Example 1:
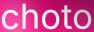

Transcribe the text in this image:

choto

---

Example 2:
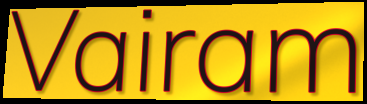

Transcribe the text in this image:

Vairam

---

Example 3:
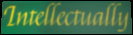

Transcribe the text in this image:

Intellectually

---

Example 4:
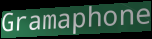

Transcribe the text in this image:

Gramaphone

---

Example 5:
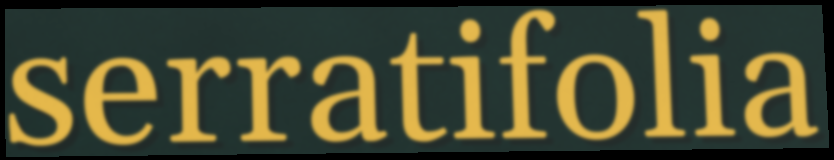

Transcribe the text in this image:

serratifolia